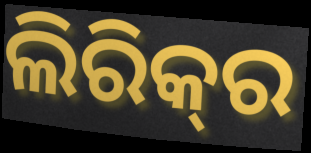
ଲିରିକ୍‍ର